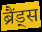
ब्रैंड्स